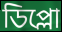
ডিপ্লো